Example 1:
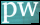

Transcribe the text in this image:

pw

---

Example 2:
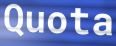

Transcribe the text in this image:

Quota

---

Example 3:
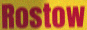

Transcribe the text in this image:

Rostow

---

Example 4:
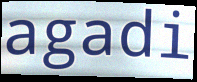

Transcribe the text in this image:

agadi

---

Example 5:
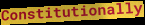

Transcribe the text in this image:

Constitutionally